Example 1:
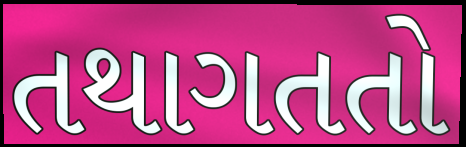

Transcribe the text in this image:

તથાગતતો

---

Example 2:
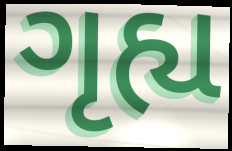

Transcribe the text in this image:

ગૃહ્ય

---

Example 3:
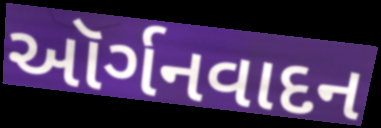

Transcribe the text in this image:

ઑર્ગનવાદન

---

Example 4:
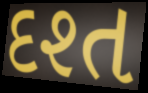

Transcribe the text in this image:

દશ્ત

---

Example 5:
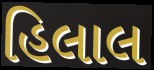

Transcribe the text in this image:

હિલાલ